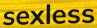
sexless